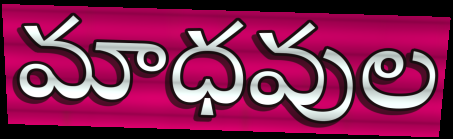
మాధవుల